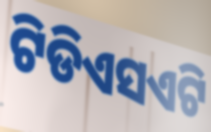
ଟିଡିଏସଏଟି